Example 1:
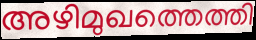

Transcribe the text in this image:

അഴിമുഖത്തെത്തി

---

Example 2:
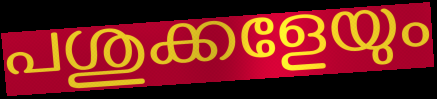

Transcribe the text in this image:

പശുക്കളേയും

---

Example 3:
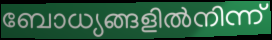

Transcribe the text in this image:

ബോധ്യങ്ങളിൽനിന്ന്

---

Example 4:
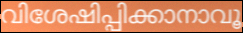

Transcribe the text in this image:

വിശേഷിപ്പിക്കാനാവൂ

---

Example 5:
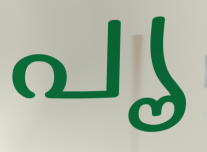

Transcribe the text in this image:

പൄ